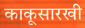
काकूसारखी